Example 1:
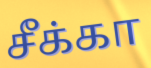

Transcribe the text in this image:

சீக்கா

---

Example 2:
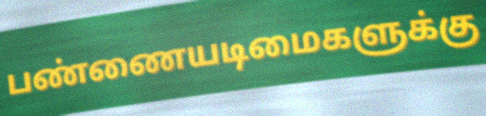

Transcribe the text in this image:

பண்ணையடிமைகளுக்கு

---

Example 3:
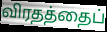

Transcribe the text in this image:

விரதத்தைப்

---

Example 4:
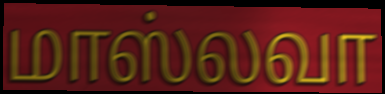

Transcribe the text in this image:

மாஸ்லவா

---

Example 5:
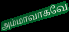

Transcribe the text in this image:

அம்மாவாகவே